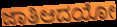
ಜಾತಿಆದಯೋ